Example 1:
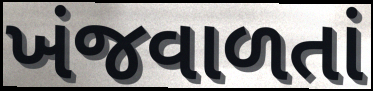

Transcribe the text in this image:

ખંજવાળતાં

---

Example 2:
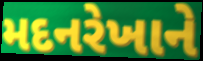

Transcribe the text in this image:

મદનરેખાને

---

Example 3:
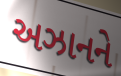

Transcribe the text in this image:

અઝાનને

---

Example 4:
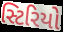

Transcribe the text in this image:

સ્ટિરિયો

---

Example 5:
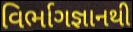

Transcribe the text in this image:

વિર્ભાગજ્ઞાનથી